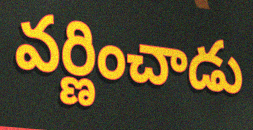
వర్ణించాడు